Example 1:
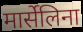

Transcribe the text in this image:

मार्सेलिना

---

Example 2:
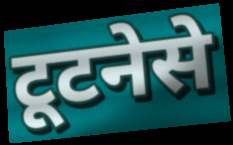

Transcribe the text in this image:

टूटनेसे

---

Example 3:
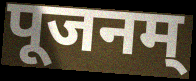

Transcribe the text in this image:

पूजनम्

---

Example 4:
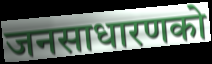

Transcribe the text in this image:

जनसाधारणको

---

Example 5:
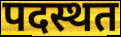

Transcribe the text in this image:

पदस्थत